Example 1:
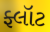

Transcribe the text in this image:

ફ્લૉટ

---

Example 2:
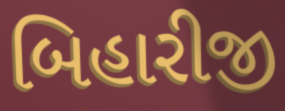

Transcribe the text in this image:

બિહારીજી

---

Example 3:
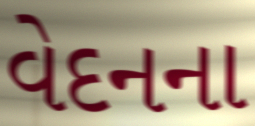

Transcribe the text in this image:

વેદનના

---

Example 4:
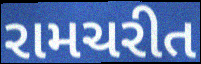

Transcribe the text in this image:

રામચરીત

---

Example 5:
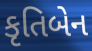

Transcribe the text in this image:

કૃતિબેન